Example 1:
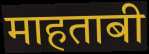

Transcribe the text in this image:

माहताबी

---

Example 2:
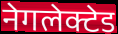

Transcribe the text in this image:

नेगलेक्टेड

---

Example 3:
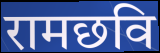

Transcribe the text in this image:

रामछवि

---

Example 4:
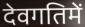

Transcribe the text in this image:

देवगतिमें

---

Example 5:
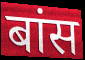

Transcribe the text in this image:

बांस